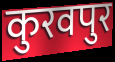
कुरवपुर